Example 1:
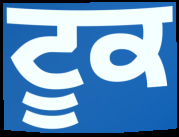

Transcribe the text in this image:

ਟੂਕ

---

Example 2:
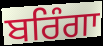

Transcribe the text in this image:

ਬਰਿੰਗਾ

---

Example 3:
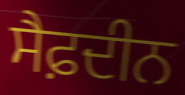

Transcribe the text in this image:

ਸੈਫ਼ਦੀਨ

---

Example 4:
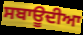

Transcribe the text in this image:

ਸਬਾਊਦੀਆ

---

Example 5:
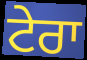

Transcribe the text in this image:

ਟੇਰਾ